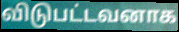
விடுபட்டவனாக